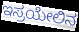
ಇಸ್ರಯೇಲಿನ